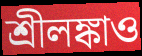
শ্রীলঙ্কাও